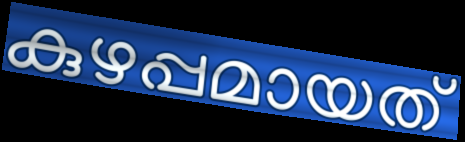
കുഴപ്പമായത്